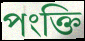
পংক্তি